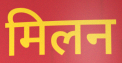
मिलन